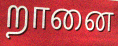
றானை